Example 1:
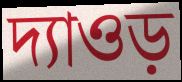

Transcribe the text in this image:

দ্যাওড়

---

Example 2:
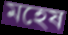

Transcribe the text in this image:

মহেষ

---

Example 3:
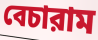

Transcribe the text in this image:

বেচারাম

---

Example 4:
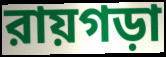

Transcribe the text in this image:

রায়গড়া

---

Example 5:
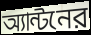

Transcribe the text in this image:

অ্যান্টনের